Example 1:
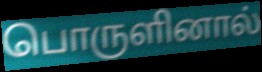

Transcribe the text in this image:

பொருளினால்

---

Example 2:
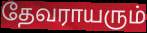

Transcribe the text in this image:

தேவராயரும்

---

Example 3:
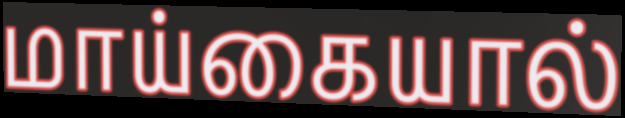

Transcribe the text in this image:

மாய்கையால்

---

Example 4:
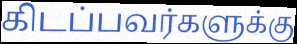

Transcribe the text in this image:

கிடப்பவர்களுக்கு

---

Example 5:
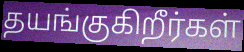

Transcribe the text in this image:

தயங்குகிறீர்கள்